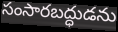
సంసారబద్ధుడను